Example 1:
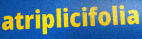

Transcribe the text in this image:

atriplicifolia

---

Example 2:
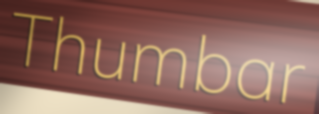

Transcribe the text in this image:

Thumbar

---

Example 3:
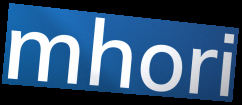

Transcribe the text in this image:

mhori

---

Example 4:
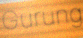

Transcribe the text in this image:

Gurung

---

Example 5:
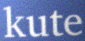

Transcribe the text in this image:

kute